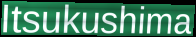
Itsukushima